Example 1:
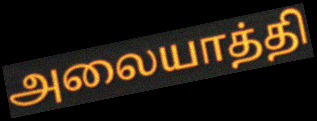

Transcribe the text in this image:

அலையாத்தி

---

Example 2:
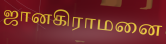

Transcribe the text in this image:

ஜானகிராமனை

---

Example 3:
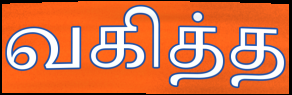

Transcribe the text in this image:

வகித்த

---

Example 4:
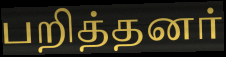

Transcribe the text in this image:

பறித்தனர்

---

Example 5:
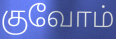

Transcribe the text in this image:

குவோம்